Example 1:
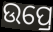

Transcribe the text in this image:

ଉପ୍ରେ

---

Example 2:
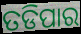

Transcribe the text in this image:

ତଡିପାର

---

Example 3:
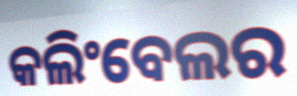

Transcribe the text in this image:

କଲିଂବେଲର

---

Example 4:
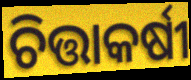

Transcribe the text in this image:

ଚିତ୍ତାକର୍ଷୀ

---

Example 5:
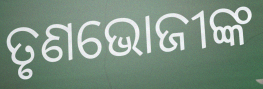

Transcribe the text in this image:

ତୃଣଭୋଜୀଙ୍କ